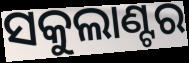
ସକୁଲାଣ୍ଟର